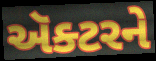
ઍક્ટરને